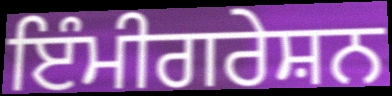
ਇੰਮੀਗਰੇਸ਼ਨ